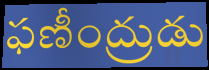
ఫణీంద్రుడు